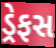
ડ્રેફસ